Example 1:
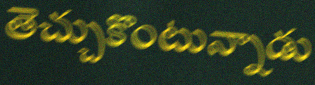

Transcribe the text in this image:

తెచ్చుకొంటున్నాడు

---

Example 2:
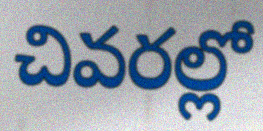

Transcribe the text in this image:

చివరల్లో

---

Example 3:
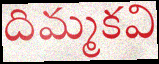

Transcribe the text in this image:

దిమ్మకవి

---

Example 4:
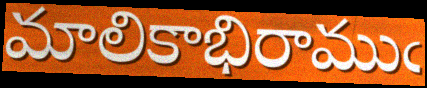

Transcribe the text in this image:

మాలికాభిరాముఁ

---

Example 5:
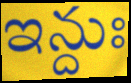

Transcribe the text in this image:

ఇన్దుః